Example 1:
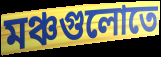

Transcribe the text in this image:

মঞ্চগুলোতে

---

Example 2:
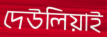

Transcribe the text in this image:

দেউলিয়াই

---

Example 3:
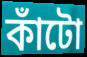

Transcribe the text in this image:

কাঁটো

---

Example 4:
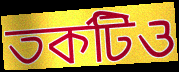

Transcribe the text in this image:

তর্কটিও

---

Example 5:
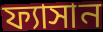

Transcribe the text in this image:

ফ্যাসান